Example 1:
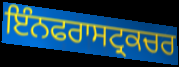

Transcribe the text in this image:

ਇੰਨਫਰਾਸਟ੍ਰਕਚਰ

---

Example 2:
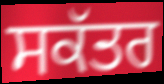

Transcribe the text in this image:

ਸਕੱਤਰ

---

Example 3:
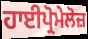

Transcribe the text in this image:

ਹਾਈਪ੍ਰੋਮੇਲੋਜ਼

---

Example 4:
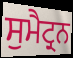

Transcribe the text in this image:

ਸੁਮੈਟ੍ਰਨ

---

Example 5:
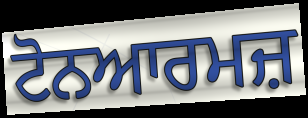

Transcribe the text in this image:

ਟੋਨਆਰਮਜ਼